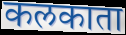
कलकाता